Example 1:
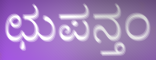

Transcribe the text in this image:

ಛುಪನ್ತಂ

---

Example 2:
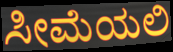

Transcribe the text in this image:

ಸೀಮೆಯಲಿ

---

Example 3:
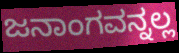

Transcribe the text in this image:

ಜನಾಂಗವನ್ನಲ್ಲ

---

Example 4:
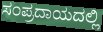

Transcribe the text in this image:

ಸಂಪ್ರದಾಯದಲ್ಲಿ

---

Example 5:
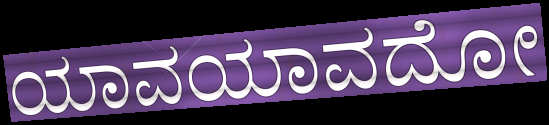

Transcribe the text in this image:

ಯಾವಯಾವದೋ